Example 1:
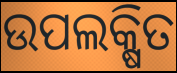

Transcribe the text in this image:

ଉପଲକ୍ଷିତ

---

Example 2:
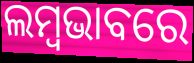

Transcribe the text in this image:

ଲମ୍ବଭାବରେ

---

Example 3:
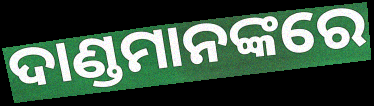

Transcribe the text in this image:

ଦାଣ୍ଡମାନଙ୍କରେ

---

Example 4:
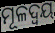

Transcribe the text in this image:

ମୂଳଦ୍ୱୟ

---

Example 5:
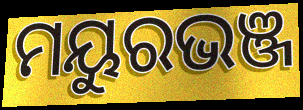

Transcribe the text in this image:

ମୟୁରଭଞ୍ଜ